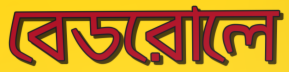
বেডরোলে